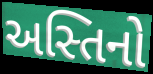
અસ્તિનો